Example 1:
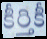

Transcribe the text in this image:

కీర్తికీ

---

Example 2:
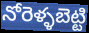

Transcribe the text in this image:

నోరెళ్ళబెట్టి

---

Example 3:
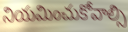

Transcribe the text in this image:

నియమించుకోవాల్సి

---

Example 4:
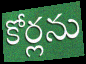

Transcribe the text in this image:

కోర్లను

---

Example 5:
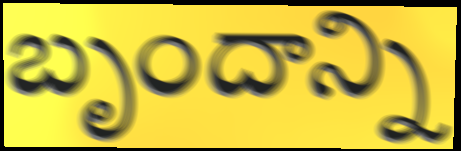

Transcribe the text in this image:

బృందాన్ని